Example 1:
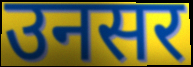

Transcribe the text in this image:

उनसर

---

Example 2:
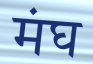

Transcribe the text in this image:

मंघ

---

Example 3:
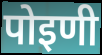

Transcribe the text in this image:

पोइणी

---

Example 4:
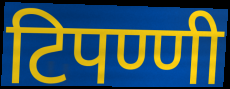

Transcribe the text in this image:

टिपण्णी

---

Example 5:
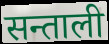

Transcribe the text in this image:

सन्ताली